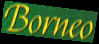
Borneo